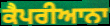
ਕੈਪਰੀਆਨਾ